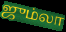
ஜும்லா